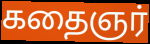
கதைஞர்